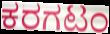
ಕರಗಟಂ